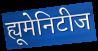
ह्यूमेनिटीज